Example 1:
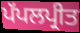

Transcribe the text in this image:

ਪੱਪਲਪ੍ਰੀਤ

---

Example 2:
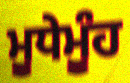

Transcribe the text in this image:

ਮੂਧੇਮੂੰਹ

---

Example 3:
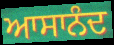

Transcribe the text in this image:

ਆਸਾਨੰਦ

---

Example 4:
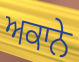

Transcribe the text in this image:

ਅਕਾਨੇ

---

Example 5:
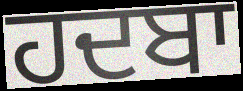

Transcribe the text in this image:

ਹਦਬਾ